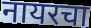
नायरचा